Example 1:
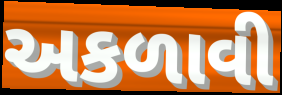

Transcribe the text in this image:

અકળાવી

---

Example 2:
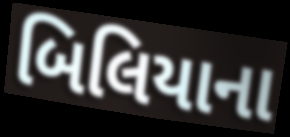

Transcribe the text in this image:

બિલિયાના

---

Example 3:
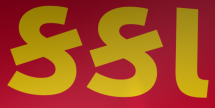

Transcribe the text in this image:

કકા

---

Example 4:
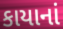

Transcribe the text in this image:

કાયાનાં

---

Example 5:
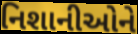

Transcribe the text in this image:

નિશાનીઓને